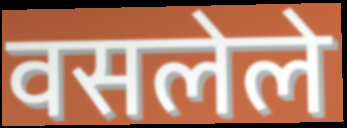
वसलेले